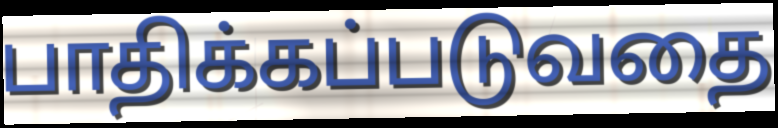
பாதிக்கப்படுவதை